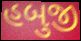
હબુજી